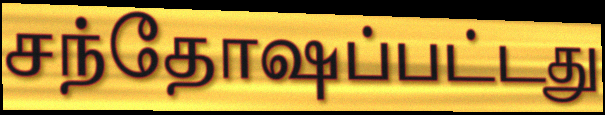
சந்தோஷப்பட்டது